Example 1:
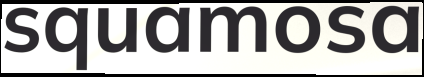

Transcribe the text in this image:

squamosa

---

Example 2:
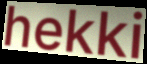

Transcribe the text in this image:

hekki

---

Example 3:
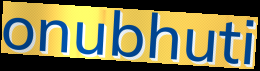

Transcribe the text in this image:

onubhuti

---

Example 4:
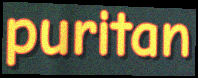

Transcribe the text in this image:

puritan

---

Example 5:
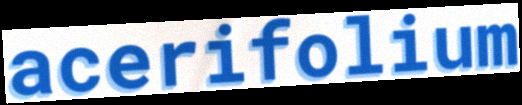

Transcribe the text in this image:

acerifolium